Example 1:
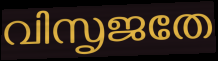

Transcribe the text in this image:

വിസൃജതേ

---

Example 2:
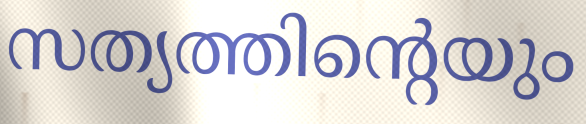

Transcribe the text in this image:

സത്യത്തിന്റെയും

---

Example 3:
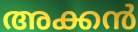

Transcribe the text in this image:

അക്കൻ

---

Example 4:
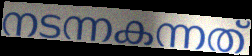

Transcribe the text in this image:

നടന്നകന്നത്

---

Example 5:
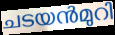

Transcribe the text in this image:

ചടയൻമുറി